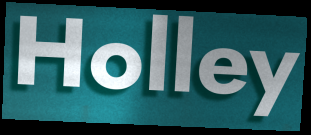
Holley